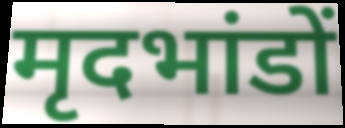
मृदभांडों